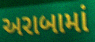
અરાબામાં